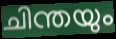
ചിന്തയും